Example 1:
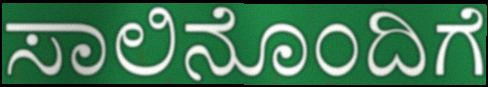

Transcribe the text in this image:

ಸಾಲಿನೊಂದಿಗೆ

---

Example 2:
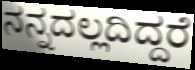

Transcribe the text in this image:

ನನ್ನದಲ್ಲದಿದ್ದರೆ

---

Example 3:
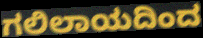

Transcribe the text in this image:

ಗಲಿಲಾಯದಿಂದ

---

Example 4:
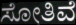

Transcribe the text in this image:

ಸೋತಿವೆ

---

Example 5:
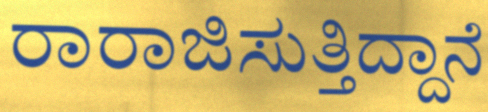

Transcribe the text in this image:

ರಾರಾಜಿಸುತ್ತಿದ್ದಾನೆ